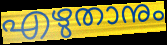
എഴുതാനും